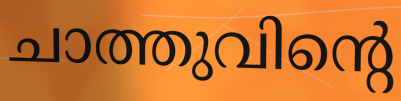
ചാത്തുവിന്റെ